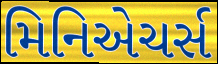
મિનિએચર્સ